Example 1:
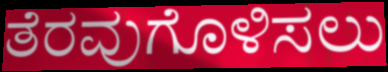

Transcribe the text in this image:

ತೆರವುಗೊಳಿಸಲು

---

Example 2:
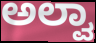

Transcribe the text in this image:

ಅಲ್ವಾ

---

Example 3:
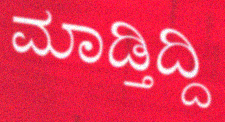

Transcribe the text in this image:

ಮಾಡ್ತಿದ್ದಿ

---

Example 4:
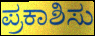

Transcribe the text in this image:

ಪ್ರಕಾಶಿಸು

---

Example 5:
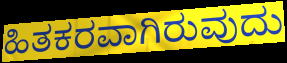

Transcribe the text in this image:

ಹಿತಕರವಾಗಿರುವುದು